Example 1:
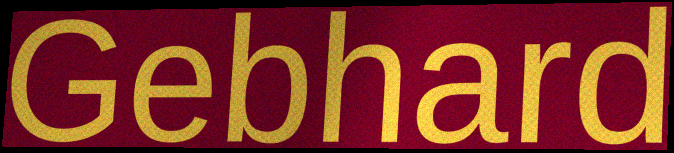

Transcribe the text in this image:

Gebhard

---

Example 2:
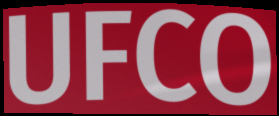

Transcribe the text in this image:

UFCO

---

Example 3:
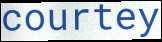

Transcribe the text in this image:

courtey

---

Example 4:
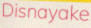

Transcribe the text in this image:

Disnayake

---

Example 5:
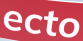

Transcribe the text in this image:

ecto